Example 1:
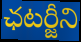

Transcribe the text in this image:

ఛటర్జీని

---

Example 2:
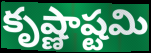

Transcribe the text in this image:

కృష్ణాష్టమి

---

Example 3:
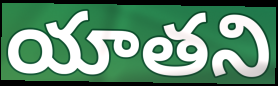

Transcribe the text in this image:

యాతని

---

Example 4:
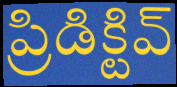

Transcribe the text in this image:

ప్రిడిక్టివ్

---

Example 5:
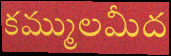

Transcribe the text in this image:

కమ్ములమీద